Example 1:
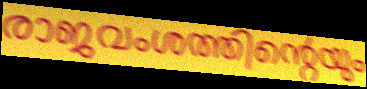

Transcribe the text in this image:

രാജവംശത്തിന്റെയും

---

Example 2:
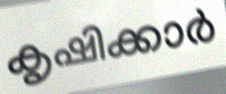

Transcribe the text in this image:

കൃഷിക്കാർ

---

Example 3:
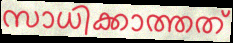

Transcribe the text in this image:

സാധിക്കാത്തത്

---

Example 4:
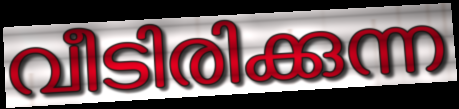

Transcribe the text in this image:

വീടിരിക്കുന്ന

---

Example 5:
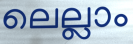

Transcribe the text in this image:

ലെല്ലാം